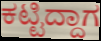
ಕಟ್ಟಿದ್ದಾಗ